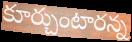
కూర్చుంటారన్న